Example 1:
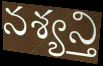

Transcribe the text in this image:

నశ్యన్తి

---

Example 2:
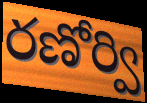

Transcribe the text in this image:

రణోర్వి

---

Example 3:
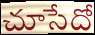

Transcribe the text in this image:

చూసేదో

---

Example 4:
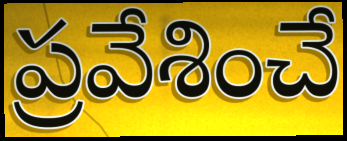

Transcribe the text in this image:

ప్రవేశించే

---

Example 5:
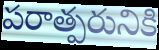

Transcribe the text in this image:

పరాత్పరునికి